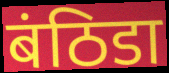
बंठिडा